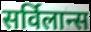
सर्विलान्स